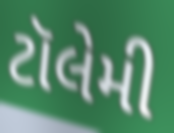
ટૉલેમી